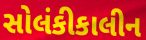
સોલંકીકાલીન